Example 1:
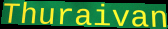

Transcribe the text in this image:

Thuraivan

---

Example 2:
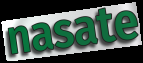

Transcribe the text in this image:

nasate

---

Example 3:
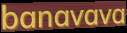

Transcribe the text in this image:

banavava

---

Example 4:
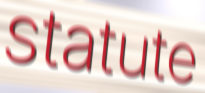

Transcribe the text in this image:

statute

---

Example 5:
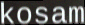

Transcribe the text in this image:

kosam